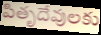
పితృదేవులకు